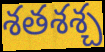
శతశశ్చ